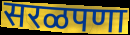
सरळपणा